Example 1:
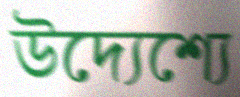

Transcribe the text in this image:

উদ্যেশ্যে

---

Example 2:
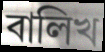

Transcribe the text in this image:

বালিখ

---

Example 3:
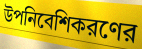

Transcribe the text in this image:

উপনিবেশিকরণের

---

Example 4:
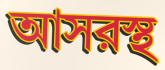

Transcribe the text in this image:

আসরস্থ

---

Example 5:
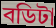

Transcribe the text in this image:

বডিটা